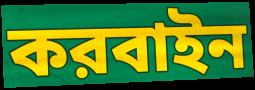
করবাইন